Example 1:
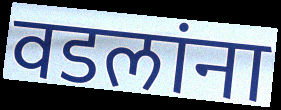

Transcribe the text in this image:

वडलांना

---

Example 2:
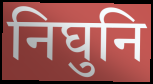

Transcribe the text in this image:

निघुनि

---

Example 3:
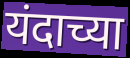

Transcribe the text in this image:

यंदाच्या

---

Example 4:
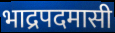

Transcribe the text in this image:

भाद्रपदमासी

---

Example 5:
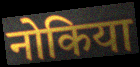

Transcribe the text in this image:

नोकिया